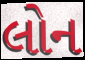
લોન